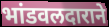
भांडवलदाराने